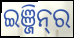
ଇଞ୍ଜିନ୍‍ର